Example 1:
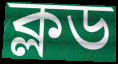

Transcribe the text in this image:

ক্লড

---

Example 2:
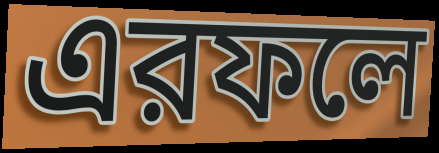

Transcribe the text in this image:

এরফলে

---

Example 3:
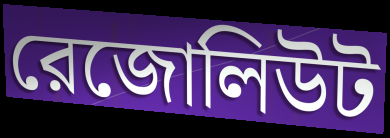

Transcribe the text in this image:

রেজোলিউট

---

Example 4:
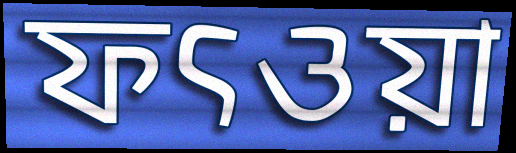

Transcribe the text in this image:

ফৎওয়া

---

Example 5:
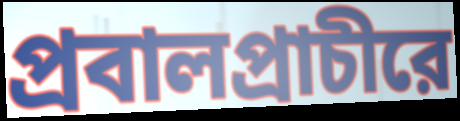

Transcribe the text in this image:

প্রবালপ্রাচীরে